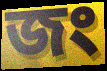
জং